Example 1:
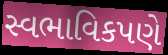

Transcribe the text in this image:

સ્વભાવિકપણે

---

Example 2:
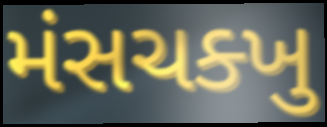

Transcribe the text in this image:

મંસચક્ખુ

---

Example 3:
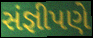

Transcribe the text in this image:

સંજ્ઞીપણે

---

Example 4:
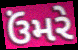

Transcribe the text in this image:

ઉંમરે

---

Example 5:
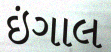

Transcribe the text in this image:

ઇંગાલ